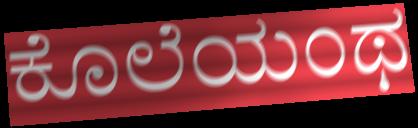
ಕೊಲೆಯಂಥ